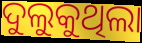
ଦୁଲୁକୁଥିଲା